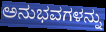
ಅನುಭವಗಳನ್ನು